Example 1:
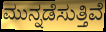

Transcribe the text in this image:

ಮುನ್ನಡೆಸುತ್ತಿವೆ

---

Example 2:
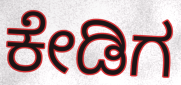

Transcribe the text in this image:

ಕೇಡಿಗ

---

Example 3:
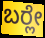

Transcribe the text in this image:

ಬರ್‍ಲೇ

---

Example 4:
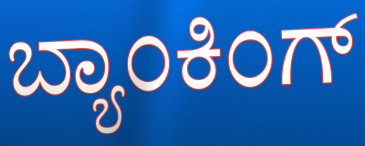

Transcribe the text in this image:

ಬ್ಯಾಂಕಿಂಗ್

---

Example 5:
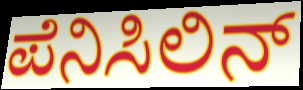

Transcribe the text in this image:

ಪೆನಿಸಿಲಿನ್